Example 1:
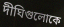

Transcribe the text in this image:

দীঘিগুলোকে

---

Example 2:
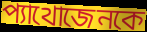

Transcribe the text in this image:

প্যাথোজেনকে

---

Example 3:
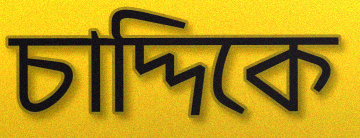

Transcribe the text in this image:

চাদ্দিকে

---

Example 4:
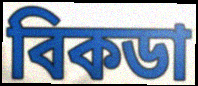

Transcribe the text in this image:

বিকডা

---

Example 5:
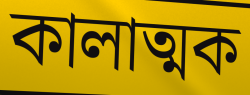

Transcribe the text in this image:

কালাত্মক